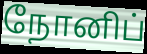
நோனிப்